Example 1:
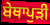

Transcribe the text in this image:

ਬੇਥਾਪੁੜੀ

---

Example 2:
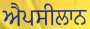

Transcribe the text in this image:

ਐਪਸੀਲਾਨ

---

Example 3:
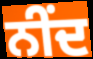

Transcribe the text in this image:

ਨੀਂਦ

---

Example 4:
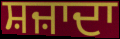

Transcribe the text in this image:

ਸ਼ਜ਼ਾਦਾ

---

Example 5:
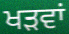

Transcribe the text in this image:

ਖੜਵਾਂ